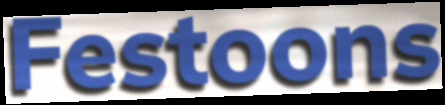
Festoons